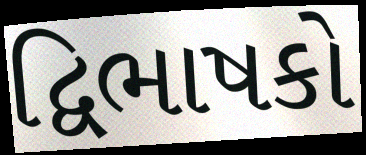
દ્વિભાષકો